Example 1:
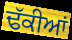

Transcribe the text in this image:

ਢੱਕੀਆਂ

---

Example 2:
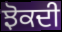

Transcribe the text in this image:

ਝੋਕਦੀ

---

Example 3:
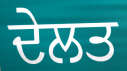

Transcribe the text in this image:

ਦੇਲਤ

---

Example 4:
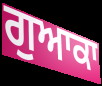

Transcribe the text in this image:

ਗੁਆਕਾ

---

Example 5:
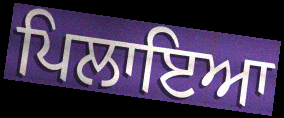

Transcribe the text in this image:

ਪਿਲਾਇਆ